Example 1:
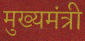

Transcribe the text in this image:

मुख्यमंत्री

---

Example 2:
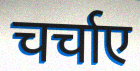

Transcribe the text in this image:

चर्चाए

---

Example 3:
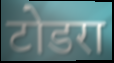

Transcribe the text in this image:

टोडरा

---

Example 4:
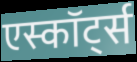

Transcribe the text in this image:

एस्कॉर्ट्स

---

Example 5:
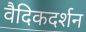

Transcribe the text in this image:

वैदिकदर्शन